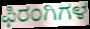
ಫಿರಂಗಿಗಳ